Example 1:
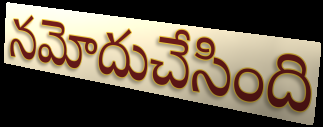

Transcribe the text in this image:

నమోదుచేసింది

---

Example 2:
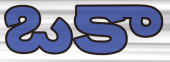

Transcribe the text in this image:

ఒకా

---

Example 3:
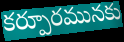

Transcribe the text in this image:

కర్పూరమునకు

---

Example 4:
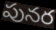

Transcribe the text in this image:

పునర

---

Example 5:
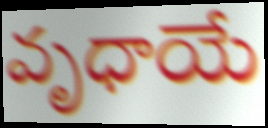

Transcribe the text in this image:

వృధాయే